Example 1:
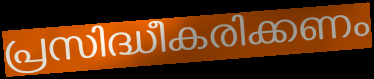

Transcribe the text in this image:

പ്രസിദ്ധീകരിക്കണം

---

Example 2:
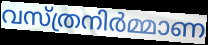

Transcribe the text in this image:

വസ്ത്രനിർമ്മാണ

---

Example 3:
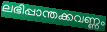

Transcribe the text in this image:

ലഭിപ്പാന്തക്കവണ്ണം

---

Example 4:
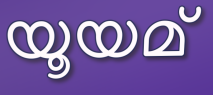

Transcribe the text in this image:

യൂയമ്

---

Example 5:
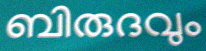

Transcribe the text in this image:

ബിരുദവും